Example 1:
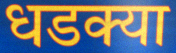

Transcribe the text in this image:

धडक्या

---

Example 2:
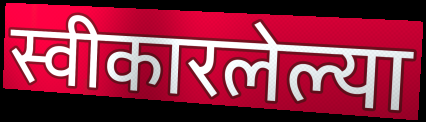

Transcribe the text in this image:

स्वीकारलेल्या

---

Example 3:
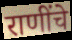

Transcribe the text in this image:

राणींचे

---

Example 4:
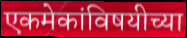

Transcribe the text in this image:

एकमेकांविषयीच्या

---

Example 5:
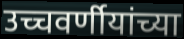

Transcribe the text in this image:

उच्चवर्णीयांच्या